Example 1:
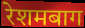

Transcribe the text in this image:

रेशमबाग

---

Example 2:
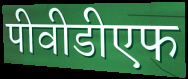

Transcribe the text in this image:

पीवीडीएफ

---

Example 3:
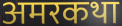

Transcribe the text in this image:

अमरकथा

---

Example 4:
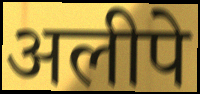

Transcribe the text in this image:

अलीपे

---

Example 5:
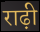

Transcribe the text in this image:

राढ़ी